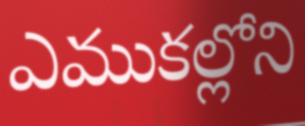
ఎముకల్లోని